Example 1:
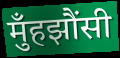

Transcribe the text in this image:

मुँहझौंसी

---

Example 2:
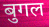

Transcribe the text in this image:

बुगल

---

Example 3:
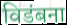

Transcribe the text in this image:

विडंबना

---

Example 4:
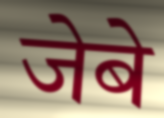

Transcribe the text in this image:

जेबे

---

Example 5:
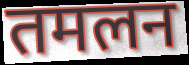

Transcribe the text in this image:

तमलन